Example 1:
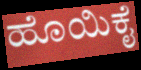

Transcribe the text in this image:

ಹೊಯಿಕೈ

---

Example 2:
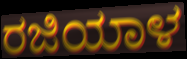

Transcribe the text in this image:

ರಜಿಯಾಳ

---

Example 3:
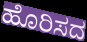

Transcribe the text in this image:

ಹೊರಿಸದ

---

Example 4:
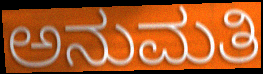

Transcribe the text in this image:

ಅನುಮತಿ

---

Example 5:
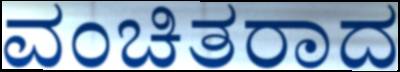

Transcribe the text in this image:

ವಂಚಿತರಾದ